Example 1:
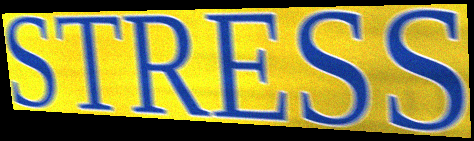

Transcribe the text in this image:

STRESS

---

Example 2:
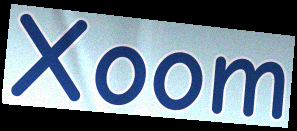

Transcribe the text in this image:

Xoom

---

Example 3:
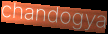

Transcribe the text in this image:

chandogya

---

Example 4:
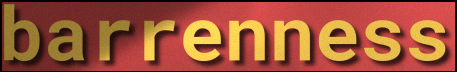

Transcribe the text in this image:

barrenness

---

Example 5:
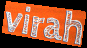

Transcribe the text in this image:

virah